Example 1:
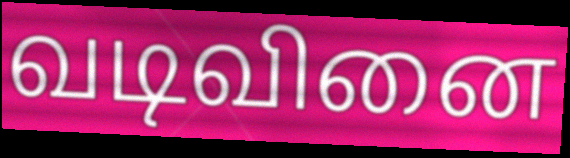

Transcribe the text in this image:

வடிவினை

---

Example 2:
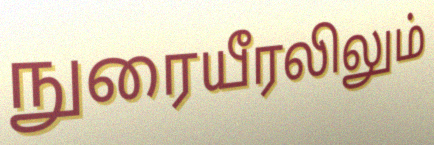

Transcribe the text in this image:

நுரையீரலிலும்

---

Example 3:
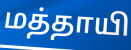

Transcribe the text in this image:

மத்தாயி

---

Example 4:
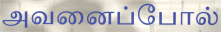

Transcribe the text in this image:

அவனைப்போல்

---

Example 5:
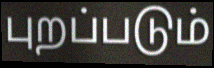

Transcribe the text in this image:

புறப்படும்